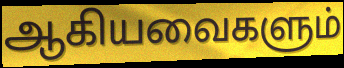
ஆகியவைகளும்